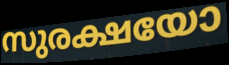
സുരക്ഷയോ